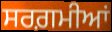
ਸਰਗ਼ਮੀਆਂ